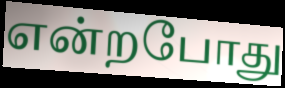
என்றபோது